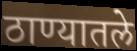
ठाण्यातले